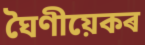
ঘৈণীয়েকৰ